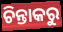
ଚିନ୍ତାକରୁ